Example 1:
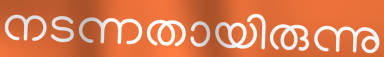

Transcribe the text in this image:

നടന്നതായിരുന്നു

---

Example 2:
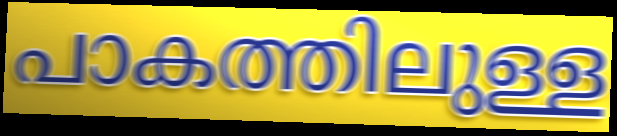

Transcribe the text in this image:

പാകത്തിലുള്ള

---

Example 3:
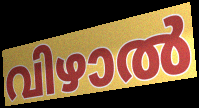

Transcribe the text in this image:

വിഴാൽ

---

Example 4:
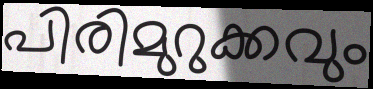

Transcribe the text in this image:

പിരിമുറുക്കവും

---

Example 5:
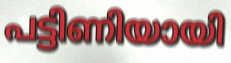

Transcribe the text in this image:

പട്ടിണിയായി